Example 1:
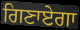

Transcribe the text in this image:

ਗਿਣਾਏਗਾ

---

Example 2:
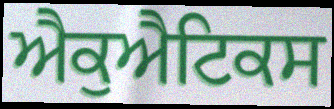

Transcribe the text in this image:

ਐਕੁਐਟਿਕਸ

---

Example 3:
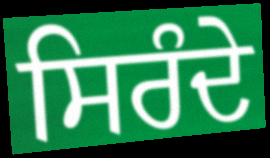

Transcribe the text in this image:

ਸਿਰੰਦੇ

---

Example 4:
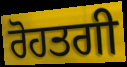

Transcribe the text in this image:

ਰੋਹਤਗੀ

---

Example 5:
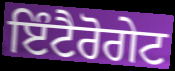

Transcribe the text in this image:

ਇੰਟੈਰੋਗੇਟ